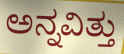
ಅನ್ನವಿತ್ತು